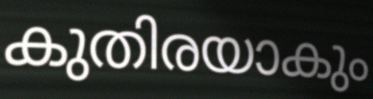
കുതിരയാകും